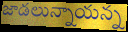
జాడలున్నాయన్న